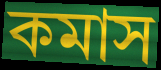
কমাস